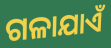
ଗଳାଯାଏଁ